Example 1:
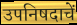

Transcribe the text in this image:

उपनिषदाचें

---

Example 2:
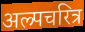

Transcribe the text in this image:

अल्पचरित्र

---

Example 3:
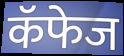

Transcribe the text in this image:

कॅफेज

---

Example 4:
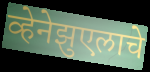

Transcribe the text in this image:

व्हेनेझुएलाचे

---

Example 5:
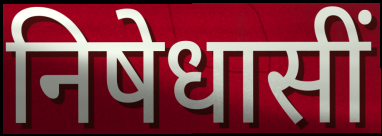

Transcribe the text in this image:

निषेधासीं